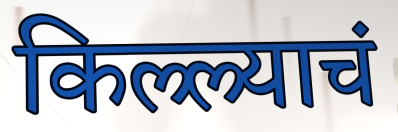
किल्ल्याचं